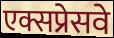
एक्सप्रेसवे